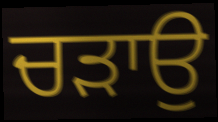
ਚੜਾਉ